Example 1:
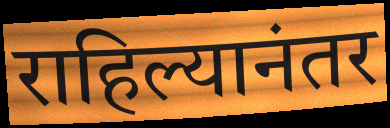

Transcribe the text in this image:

राहिल्यानंतर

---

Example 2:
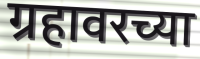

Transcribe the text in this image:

ग्रहावरच्या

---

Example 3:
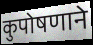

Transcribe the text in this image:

कुपोषणाने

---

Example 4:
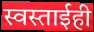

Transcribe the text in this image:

स्वस्ताईही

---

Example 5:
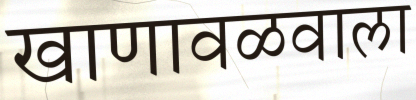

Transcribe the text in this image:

खाणावळवाला